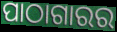
ପାଠାଗାରର